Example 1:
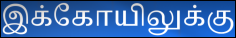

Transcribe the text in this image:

இக்கோயிலுக்கு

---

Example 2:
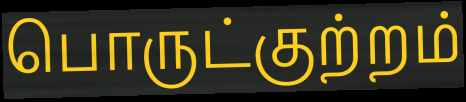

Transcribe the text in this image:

பொருட்குற்றம்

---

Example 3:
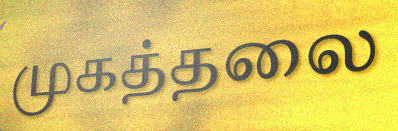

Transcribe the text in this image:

முகத்தலை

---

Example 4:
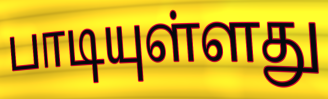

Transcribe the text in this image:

பாடியுள்ளது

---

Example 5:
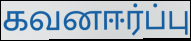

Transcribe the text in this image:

கவனஈர்ப்பு